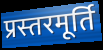
प्रस्तरमूर्ति